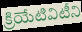
క్రియేటివిటీని